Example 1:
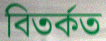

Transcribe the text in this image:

বিতৰ্কত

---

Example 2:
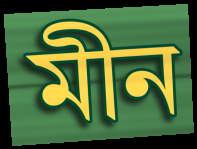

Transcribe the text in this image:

মীন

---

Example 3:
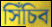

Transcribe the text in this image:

সিঁচিব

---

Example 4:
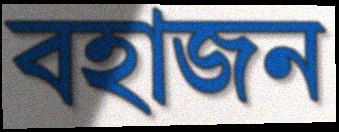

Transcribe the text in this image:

বহাজন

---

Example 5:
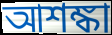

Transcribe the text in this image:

আশঙ্কা